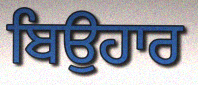
ਬਿਉਹਾਰ